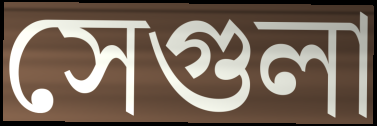
সেগুলা